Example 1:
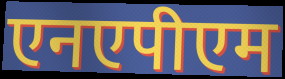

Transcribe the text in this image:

एनएपीएम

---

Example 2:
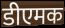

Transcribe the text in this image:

डीएमक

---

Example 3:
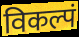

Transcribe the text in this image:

विकल्पं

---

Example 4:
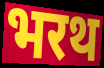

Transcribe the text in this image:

भरथ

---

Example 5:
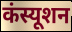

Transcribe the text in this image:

कंस्यूशन